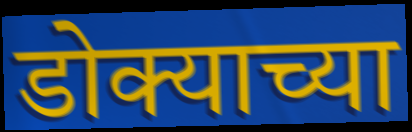
डोक्याच्या